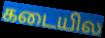
கடையில